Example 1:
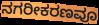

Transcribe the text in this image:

ನಗರೀಕರಣವೂ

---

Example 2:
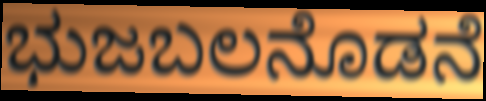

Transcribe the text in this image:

ಭುಜಬಲನೊಡನೆ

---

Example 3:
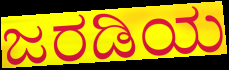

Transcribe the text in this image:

ಜರಡಿಯ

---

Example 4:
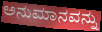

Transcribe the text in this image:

ಅನುಮಾನವನ್ನು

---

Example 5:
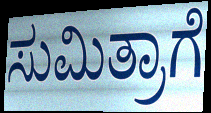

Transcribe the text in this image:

ಸುಮಿತ್ರಾಗೆ